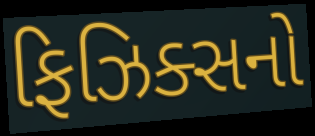
ફિઝિક્સનો